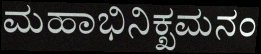
ಮಹಾಭಿನಿಕ್ಖಮನಂ